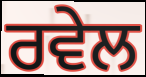
ਰਵੇਲ